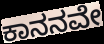
ಕಾನನವೇ